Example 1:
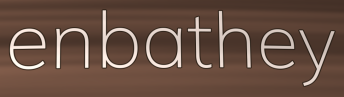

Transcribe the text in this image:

enbathey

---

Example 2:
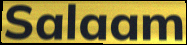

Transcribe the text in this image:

Salaam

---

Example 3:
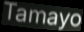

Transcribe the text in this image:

Tamayo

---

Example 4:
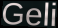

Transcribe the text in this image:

Geli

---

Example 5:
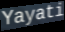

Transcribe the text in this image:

Yayati